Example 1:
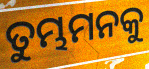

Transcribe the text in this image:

ତୁମ୍ଭମନକୁ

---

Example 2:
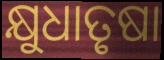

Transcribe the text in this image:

କ୍ଷୁଧାତୃଷା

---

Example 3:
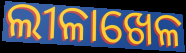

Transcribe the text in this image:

ଲୀଳାଖେଳ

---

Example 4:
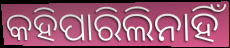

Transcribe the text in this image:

କହିପାରିଲିନାହିଁ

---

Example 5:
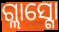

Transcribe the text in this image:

ଗ୍ଲାସ୍ଗୋ